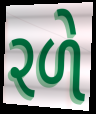
રળે